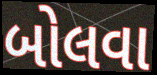
બોલવા